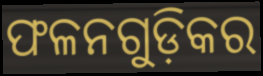
ଫଳନଗୁଡ଼ିକର